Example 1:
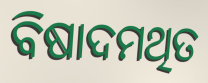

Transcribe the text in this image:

ବିଷାଦମଥିତ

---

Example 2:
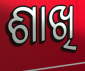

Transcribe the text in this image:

ଶାଖି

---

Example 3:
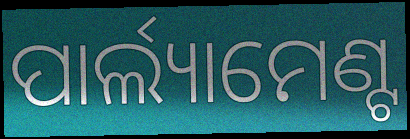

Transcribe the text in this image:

ପାର୍ଲ୍ୟାମେଣ୍ଟ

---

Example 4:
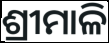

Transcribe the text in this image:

ଶ୍ରୀମାଳି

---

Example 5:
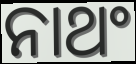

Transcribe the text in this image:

ନାଥଂ